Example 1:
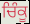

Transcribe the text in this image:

ਚਿੰਕੂ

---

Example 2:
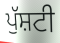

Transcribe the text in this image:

ਪੁੱਸ਼ਟੀ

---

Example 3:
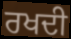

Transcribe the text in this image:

ਰਖਦੀ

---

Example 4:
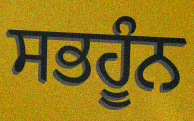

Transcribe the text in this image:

ਸਭਹੂੰਨ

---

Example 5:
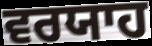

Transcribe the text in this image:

ਵਰਯਾਹ